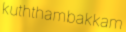
kuththambakkam